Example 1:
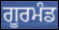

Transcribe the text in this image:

ਗੂਰਮੰਡ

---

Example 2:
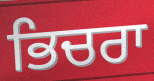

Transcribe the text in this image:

ਭਿਚਰਾ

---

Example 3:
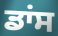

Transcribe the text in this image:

ਡਾਂਸ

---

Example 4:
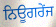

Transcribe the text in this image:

ਨਿਊਗਰੇਂਜ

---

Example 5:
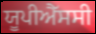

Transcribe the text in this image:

ਯੂਪੀਐੱਸਸੀ